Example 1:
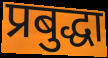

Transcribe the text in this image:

प्रबुद्धा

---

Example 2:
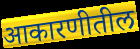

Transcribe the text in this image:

आकारणीतील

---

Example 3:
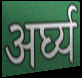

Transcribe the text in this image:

अर्घ्य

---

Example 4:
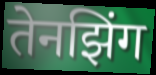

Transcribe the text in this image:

तेनझिंग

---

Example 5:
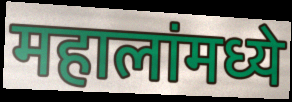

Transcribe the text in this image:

महालांमध्ये